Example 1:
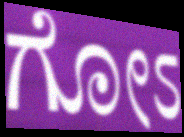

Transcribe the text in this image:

ಗೋಽ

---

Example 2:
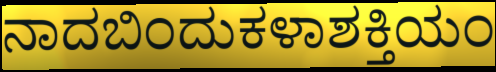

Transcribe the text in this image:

ನಾದಬಿಂದುಕಳಾಶಕ್ತಿಯಂ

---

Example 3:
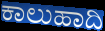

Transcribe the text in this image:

ಕಾಲುಹಾದಿ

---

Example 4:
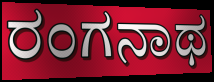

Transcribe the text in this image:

ರಂಗನಾಥ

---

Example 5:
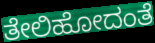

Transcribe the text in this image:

ತೇಲಿಹೋದಂತೆ